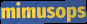
mimusops